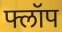
फ्लॉप